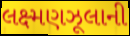
લક્ષ્મણઝૂલાની